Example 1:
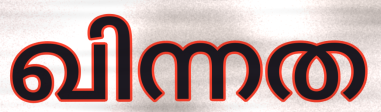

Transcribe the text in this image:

ഖിന്നത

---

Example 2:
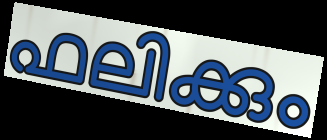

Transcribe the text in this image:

ഫലിക്കും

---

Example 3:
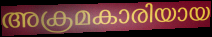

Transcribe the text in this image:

അക്രമകാരിയായ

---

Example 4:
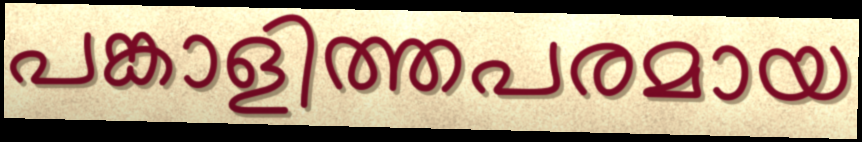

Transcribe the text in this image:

പങ്കാളിത്തപരമായ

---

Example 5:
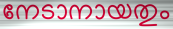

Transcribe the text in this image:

നേടാനായതും